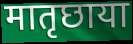
मातृछाया